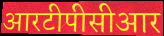
आरटीपीसीआर